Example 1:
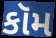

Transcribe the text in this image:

કૉમ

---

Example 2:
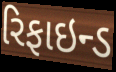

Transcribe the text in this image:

રિફાઇન્ડ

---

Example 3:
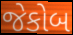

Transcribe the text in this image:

જેકોબ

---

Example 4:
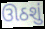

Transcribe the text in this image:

ઊઠશું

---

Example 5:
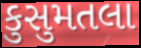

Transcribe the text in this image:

કુસુમતલા